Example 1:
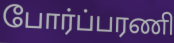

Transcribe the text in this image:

போர்ப்பரணி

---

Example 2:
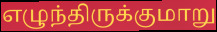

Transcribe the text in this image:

எழுந்திருக்குமாறு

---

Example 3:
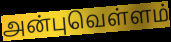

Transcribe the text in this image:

அன்புவெள்ளம்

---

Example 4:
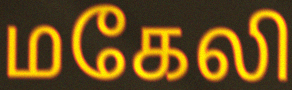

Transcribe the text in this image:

மகேலி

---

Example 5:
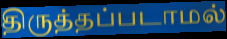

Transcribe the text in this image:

திருத்தப்படாமல்